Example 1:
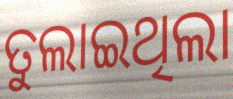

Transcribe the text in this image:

ତୁଲାଇଥିଲା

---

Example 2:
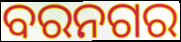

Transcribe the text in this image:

ବରନଗର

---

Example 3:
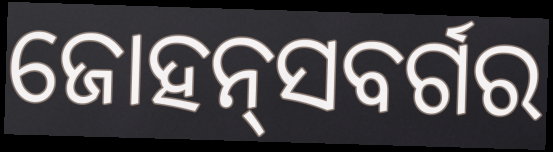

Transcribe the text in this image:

ଜୋହନ୍‌ସବର୍ଗର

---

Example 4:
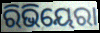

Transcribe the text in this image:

ରିଭିୟେରା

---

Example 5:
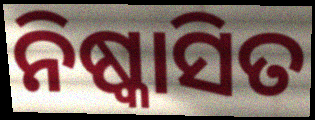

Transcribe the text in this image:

ନିଷ୍କାସିତ